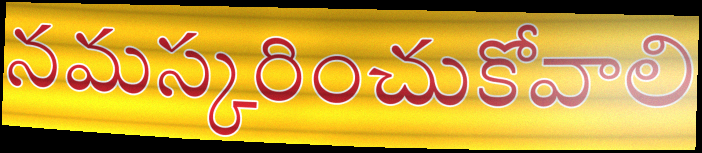
నమస్కరించుకోవాలి